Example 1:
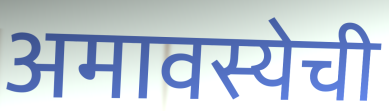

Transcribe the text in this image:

अमावस्येची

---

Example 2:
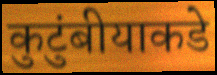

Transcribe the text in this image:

कुटुंबीयाकडे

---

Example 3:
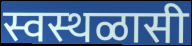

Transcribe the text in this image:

स्वस्थळासी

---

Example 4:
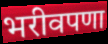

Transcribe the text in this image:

भरीवपणा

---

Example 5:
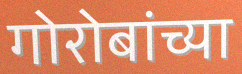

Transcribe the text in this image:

गोरोबांच्या